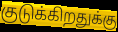
குடுக்கிறதுக்கு